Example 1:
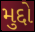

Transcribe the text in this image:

મુદ્દો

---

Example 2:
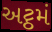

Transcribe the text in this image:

અટ્ઠમં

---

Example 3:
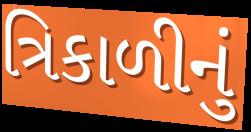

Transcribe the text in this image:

ત્રિકાળીનું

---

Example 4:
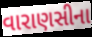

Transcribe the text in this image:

વારાણસીના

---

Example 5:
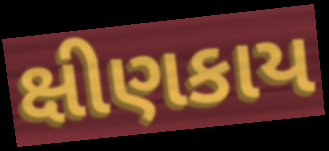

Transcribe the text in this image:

ક્ષીણકાય